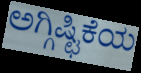
ಅಗ್ಗಿಷ್ಟಿಕೆಯ